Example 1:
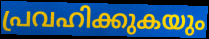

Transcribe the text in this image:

പ്രവഹിക്കുകയും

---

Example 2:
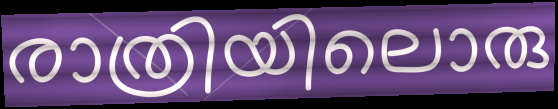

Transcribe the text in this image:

രാത്രിയിലൊരു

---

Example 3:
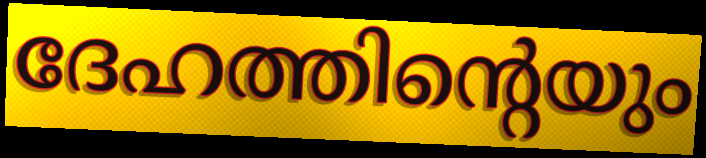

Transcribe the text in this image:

ദേഹത്തിന്റെയും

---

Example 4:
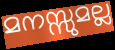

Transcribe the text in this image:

മനസ്സുമല്ല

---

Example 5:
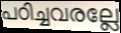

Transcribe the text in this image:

പഠിച്ചവരല്ലേ